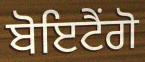
ਬੋਇਟੈਂਗੋ